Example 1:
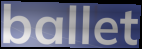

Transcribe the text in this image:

ballet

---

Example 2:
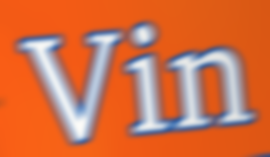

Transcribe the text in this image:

Vin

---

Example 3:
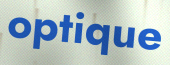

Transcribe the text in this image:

optique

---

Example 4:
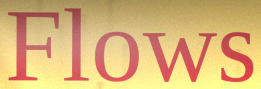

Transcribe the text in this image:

Flows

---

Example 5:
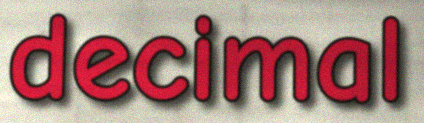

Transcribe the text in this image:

decimal